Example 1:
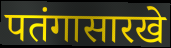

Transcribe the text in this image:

पतंगासारखे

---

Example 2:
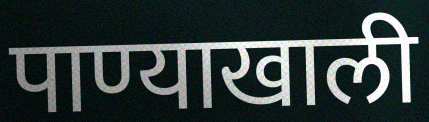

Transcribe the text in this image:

पाण्‍याखाली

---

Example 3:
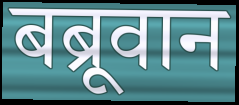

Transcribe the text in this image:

बब्रूवान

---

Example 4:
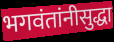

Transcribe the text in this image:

भगवंतांनीसुद्धा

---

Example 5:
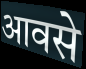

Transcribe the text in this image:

आवसे